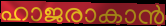
ഹാജരാകാൻ